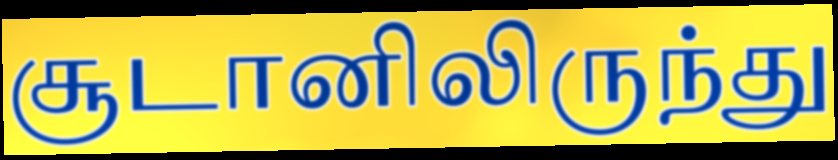
சூடானிலிருந்து